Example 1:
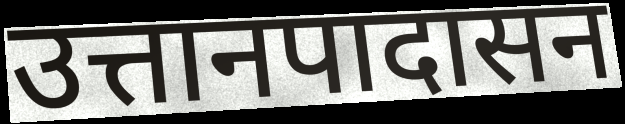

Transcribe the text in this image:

उत्तानपादासन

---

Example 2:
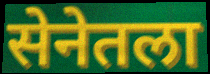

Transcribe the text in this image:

सेनेतला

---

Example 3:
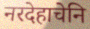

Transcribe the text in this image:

नरदेहाचेनि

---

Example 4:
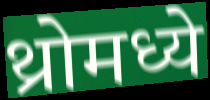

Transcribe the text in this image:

थ्रोमध्ये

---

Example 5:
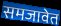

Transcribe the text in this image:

समजावेत